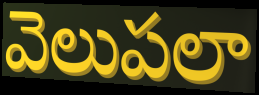
వెలుపలా